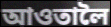
আওতালৈ